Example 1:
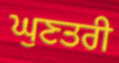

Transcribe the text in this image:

ਘੁਣਤਰੀ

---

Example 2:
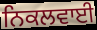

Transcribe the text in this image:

ਨਿਕਲਵਾਈ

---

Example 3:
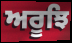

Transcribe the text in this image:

ਅਰੂਝਿ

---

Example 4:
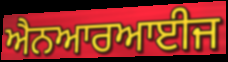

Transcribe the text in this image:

ਐਨਆਰਆਈਜ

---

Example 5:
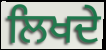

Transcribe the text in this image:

ਲਿਖਦੇ